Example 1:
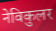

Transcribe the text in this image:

नेविकुलर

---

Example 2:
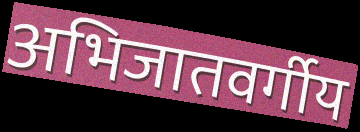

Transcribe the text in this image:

अभिजातवर्गीय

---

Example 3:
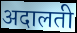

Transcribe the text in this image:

अदालती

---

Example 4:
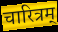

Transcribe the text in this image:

चारित्रम्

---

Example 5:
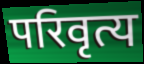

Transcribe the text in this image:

परिवृत्य